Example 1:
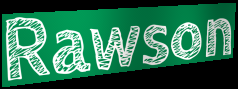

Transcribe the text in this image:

Rawson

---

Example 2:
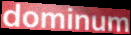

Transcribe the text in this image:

dominum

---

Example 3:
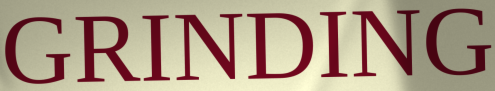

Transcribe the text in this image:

GRINDING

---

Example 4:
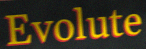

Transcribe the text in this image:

Evolute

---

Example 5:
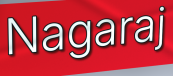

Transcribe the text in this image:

Nagaraj